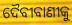
ଦୈବୀବାଣୀକୁ